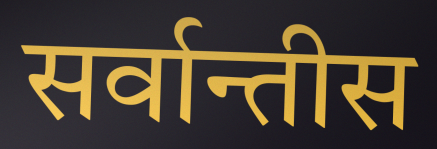
सर्वान्तीस